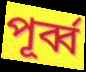
পূৰ্ব্ব